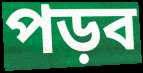
পড়ব